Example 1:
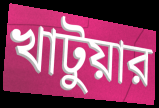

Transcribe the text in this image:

খাটুয়ার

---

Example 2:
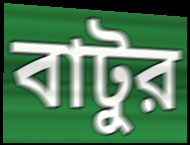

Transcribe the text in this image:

বাটুর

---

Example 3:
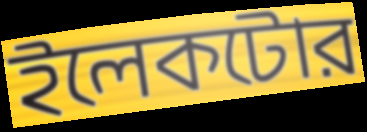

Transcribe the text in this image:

ইলেকটোর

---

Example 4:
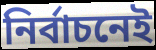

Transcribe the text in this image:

নির্বাচনেই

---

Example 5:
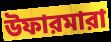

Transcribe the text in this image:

উফারমারা